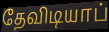
தேவிடியாப்